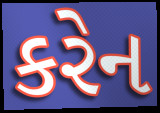
કરેન